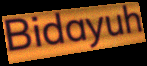
Bidayuh